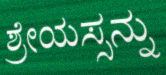
ಶ್ರೇಯಸ್ಸನ್ನು